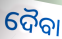
ଦୈବା